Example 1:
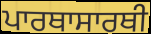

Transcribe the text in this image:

ਪਾਰਥਾਸਾਰਥੀ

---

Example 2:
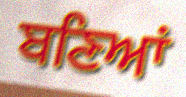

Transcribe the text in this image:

ਬਣਿਆਂ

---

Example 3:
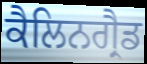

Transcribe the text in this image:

ਕੈਲਿਨਗ੍ਰੈਡ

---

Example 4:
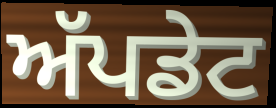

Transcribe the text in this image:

ਅੱਪਡੇਟ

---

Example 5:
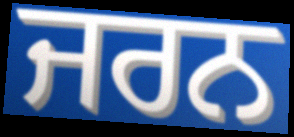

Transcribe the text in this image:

ਜਰਨ